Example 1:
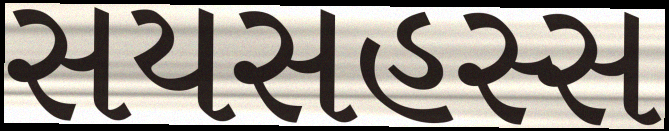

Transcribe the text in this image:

સયસહસ્સ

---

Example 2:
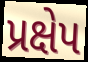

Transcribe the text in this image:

પ્રક્ષેપ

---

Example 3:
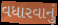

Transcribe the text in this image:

વધારવાનું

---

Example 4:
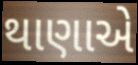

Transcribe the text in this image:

થાણાએ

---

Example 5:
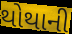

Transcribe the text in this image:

થોથાની